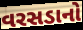
વરસડાનો